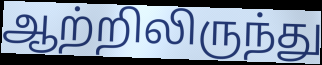
ஆற்றிலிருந்து